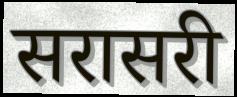
सरासरी